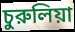
চুরুলিয়া